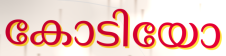
കോടിയോ